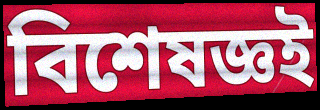
বিশেষজ্ঞই